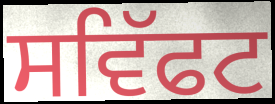
ਸਵਿੱਫਟ